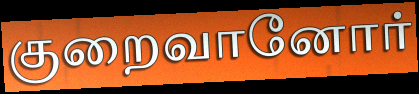
குறைவானோர்